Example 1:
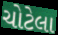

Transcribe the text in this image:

ચોટેલા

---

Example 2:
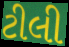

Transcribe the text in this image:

ટીલી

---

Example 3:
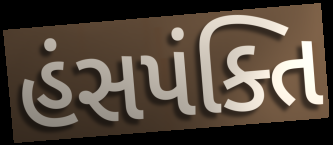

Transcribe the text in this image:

હંસપંક્તિ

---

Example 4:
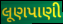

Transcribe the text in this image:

લૂણપાણી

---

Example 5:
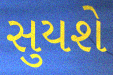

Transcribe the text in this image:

સુયશે